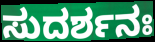
ಸುದರ್ಶನಃ